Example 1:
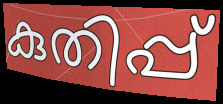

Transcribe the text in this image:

കുതിപ്പ്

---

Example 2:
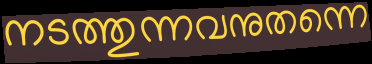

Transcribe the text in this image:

നടത്തുന്നവനുതന്നെ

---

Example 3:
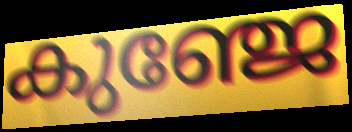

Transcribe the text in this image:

കുഞ്ജേ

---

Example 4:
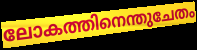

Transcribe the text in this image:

ലോകത്തിനെന്തുചേതം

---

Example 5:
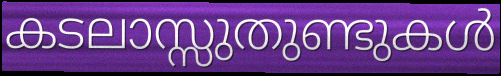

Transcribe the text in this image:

കടലാസ്സുതുണ്ടുകൾ